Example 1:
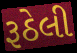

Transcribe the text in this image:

રૂઠેલી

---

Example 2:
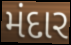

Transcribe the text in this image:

મંદાર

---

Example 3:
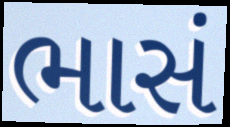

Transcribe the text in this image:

ભાસં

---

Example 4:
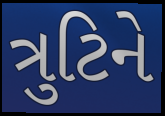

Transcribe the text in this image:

ત્રુટિને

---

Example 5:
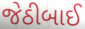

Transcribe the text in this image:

જેઠીબાઈ